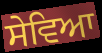
ਸੇਵਿਆ